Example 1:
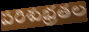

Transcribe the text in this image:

పరిశుభ్రతల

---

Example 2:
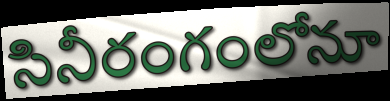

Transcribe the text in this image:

సినీరంగంలోనూ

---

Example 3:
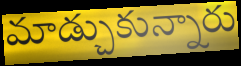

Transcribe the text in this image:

మాడ్చుకున్నారు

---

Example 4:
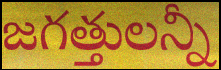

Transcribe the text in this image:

జగత్తులన్నీ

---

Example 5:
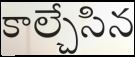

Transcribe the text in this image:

కాల్చేసిన